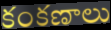
కంకణాలు